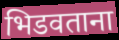
भिडवताना